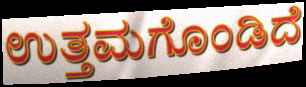
ಉತ್ತಮಗೊಂಡಿದೆ